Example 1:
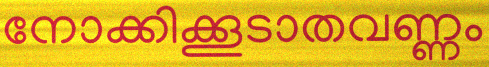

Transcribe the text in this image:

നോക്കിക്കൂടാതവണ്ണം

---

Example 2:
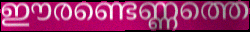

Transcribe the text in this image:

ഈരണ്ടെണ്ണത്തെ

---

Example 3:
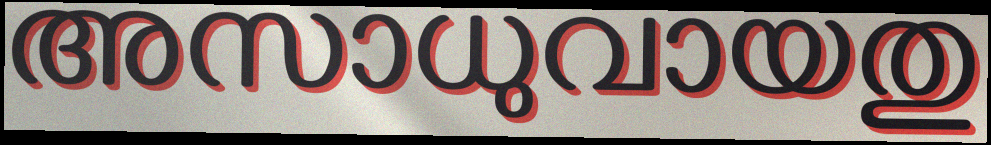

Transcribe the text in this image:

അസാധുവായതു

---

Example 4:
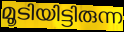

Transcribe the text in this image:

മൂടിയിട്ടിരുന്ന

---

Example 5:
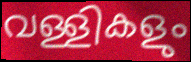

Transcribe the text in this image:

വള്ളികളും